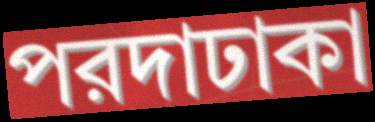
পরদাঢাকা